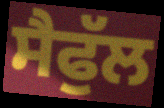
ਸੈਫੁੱਲ